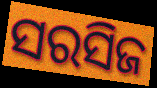
ସରସିଜ